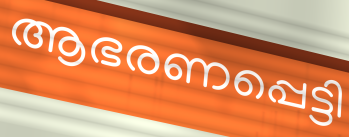
ആഭരണപ്പെട്ടി